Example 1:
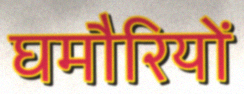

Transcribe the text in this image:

घमौरियों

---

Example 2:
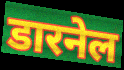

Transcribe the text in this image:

डारनेल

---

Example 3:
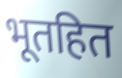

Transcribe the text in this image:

भूतहित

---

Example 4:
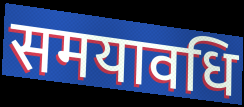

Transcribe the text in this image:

समयावधि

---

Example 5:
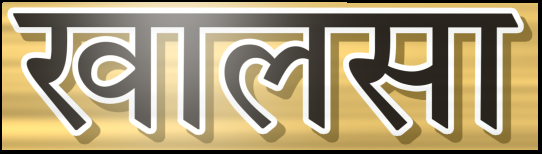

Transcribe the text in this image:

खालसा